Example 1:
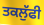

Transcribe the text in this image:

ਤਕਲੁੱਫੀ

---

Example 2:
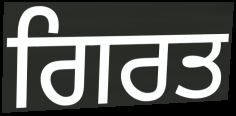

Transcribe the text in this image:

ਗਿਰਤ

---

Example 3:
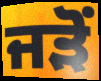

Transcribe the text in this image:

ਜੜੋਂ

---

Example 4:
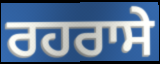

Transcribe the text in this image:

ਰਹਰਾਸੇ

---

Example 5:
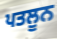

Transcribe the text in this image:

ਪਤਲੂਨ